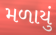
મળાયું